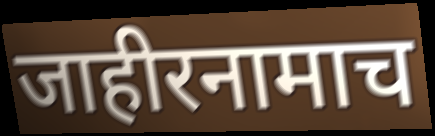
जाहीरनामाच